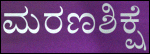
ಮರಣಶಿಕ್ಷೆ